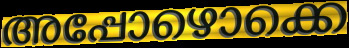
അപ്പോഴൊക്കെ